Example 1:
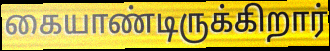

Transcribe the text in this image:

கையாண்டிருக்கிறார்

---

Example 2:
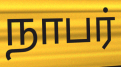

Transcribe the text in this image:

நாபர்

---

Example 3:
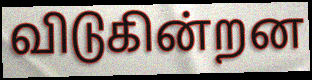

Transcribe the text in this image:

விடுகின்றன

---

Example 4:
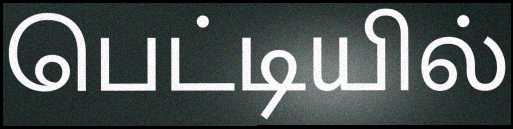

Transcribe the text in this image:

பெட்டியில்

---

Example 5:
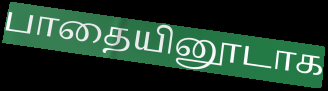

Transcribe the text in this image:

பாதையினூடாக